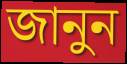
জানুন